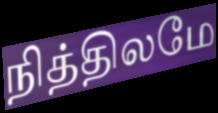
நித்திலமே